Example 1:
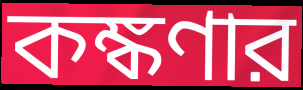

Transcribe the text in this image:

কঙ্কণার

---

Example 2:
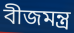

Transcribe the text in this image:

বীজমন্ত্র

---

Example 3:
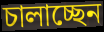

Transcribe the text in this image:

চালাচ্ছেন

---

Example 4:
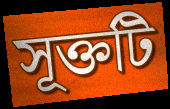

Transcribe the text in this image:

সূক্তটি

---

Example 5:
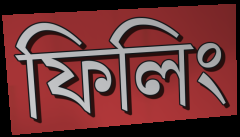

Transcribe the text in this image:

ফিলিং